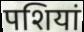
पशियां